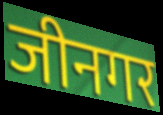
जीनगर